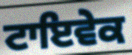
ਟਾਇਵੇਕ